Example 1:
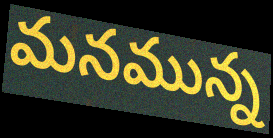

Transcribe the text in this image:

మనమున్న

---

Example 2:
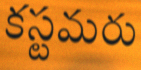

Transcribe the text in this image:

కస్టమరు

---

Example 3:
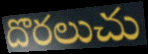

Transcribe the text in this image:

దొరలుచు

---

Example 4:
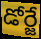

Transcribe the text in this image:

డోర్జే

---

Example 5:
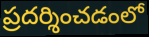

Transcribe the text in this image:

ప్రదర్శించడంలో